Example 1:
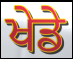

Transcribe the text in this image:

ਖੇਡੇ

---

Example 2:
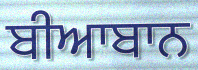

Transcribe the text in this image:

ਬੀਆਬਾਨ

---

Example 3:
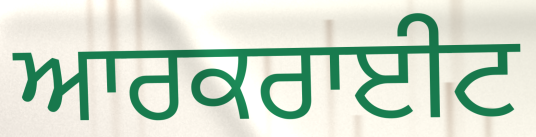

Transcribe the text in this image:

ਆਰਕਰਾਈਟ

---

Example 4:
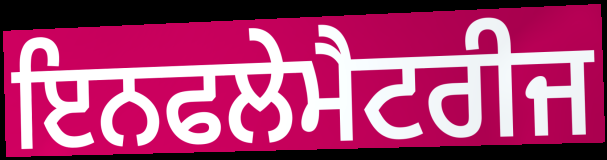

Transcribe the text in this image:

ਇਨਫਲੇਮੈਟਰੀਜ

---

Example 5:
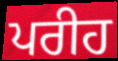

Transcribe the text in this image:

ਪਰੀਹ